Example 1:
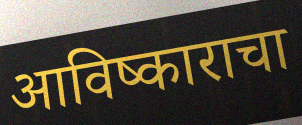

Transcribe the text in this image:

आविष्काराचा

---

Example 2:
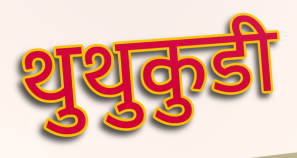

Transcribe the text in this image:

थुथुकुडी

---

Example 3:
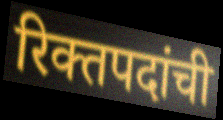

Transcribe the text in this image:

रिक्तपदांची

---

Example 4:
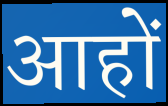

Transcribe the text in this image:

आहों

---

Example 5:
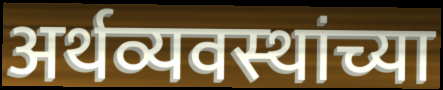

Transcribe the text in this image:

अर्थव्यवस्थांच्या